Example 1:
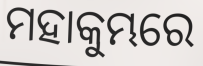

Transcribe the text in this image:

ମହାକୁମ୍ଭରେ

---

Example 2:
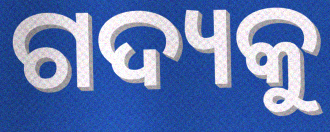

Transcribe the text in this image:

ଗଦ୍ୟକୁ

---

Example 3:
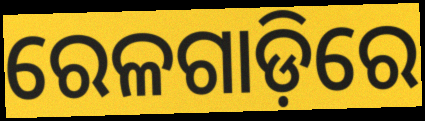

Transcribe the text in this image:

ରେଳଗାଡ଼ିରେ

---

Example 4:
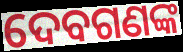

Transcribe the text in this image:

ଦେବଗଣଙ୍କ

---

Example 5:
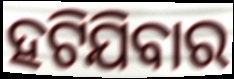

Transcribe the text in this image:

ହଟିଯିବାର